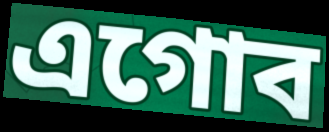
এগোব